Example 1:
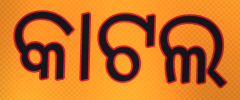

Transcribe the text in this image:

କାଟଲ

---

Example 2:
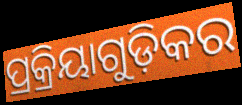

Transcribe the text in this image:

ପ୍ରକ୍ରିୟାଗୁଡ଼ିକର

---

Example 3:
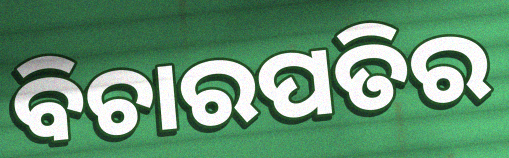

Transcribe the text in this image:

ବିଚାରପତିର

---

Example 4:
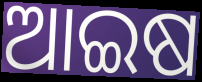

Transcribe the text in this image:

ଆଇଷ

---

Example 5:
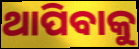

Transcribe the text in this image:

ଥାପିବାକୁ